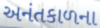
અનંતકાળના